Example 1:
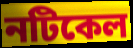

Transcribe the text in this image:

নটিকেল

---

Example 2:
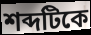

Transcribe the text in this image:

শব্দটিকে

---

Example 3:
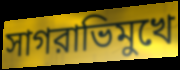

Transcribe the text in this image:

সাগরাভিমুখে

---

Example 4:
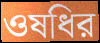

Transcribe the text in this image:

ওষধির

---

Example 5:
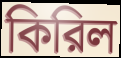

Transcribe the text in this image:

কিরিল